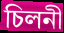
চিলনী